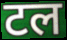
टल